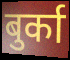
बुर्का